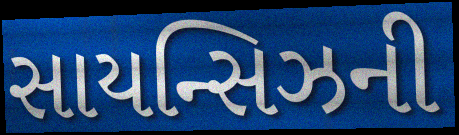
સાયન્સિઝની